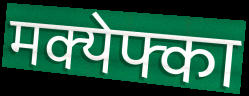
मक्येफ्का